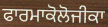
ਫਾਰਮਾਕੋਲੋਜੀਕਾ